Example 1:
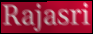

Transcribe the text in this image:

Rajasri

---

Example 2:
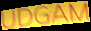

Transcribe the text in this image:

UDGAM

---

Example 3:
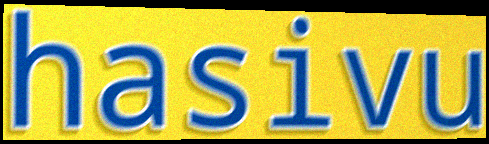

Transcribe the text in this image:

hasivu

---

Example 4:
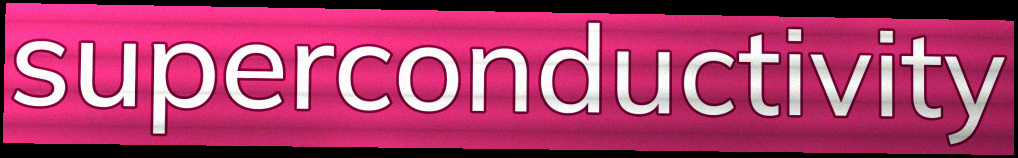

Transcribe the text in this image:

superconductivity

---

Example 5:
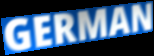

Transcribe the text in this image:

GERMAN